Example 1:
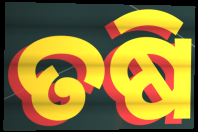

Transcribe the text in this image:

ତଷି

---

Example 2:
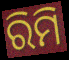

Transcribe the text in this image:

ରିମି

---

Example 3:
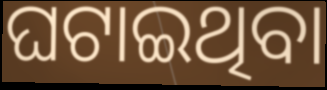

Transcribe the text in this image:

ଘଟାଇଥିବା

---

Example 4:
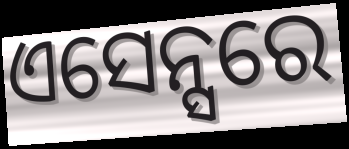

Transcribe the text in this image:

ଏସେନ୍ସରେ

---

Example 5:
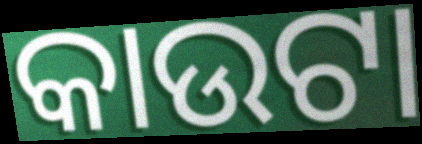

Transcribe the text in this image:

କାଉଟା